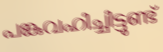
പങ്കുവഹിച്ചിട്ടുണ്ട്